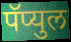
पॅप्युल